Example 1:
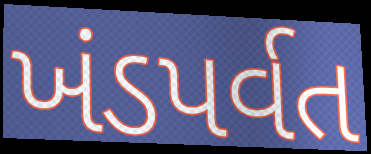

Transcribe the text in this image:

ખંડપર્વત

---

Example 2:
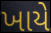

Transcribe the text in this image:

ખાયે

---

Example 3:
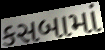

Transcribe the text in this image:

કસબામાં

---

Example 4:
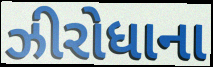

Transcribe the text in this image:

ઝીરોધાના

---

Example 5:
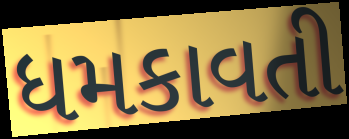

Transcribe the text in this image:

ધમકાવતી